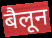
बैलून